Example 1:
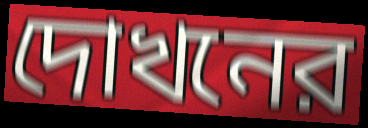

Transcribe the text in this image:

দোখনের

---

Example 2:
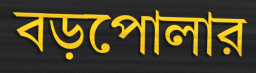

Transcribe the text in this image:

বড়পোলার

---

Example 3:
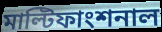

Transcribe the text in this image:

মাল্টিফাংশনাল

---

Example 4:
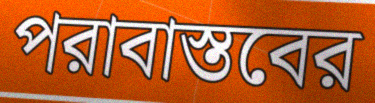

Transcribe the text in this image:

পরাবাস্তবের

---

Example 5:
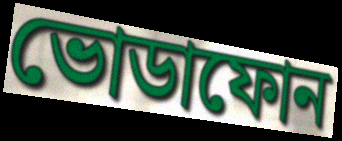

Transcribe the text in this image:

ভোডাফোন